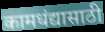
कामधंद्यासाठी